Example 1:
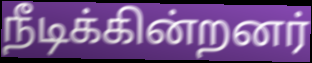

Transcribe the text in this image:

நீடிக்கின்றனர்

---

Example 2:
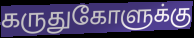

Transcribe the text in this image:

கருதுகோளுக்கு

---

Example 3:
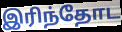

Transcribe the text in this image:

இரிந்தோட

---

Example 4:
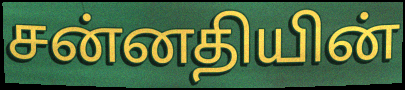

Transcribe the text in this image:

சன்னதியின்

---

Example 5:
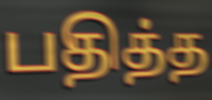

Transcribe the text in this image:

பதித்த